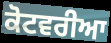
ਕੋਟਵਰੀਆ